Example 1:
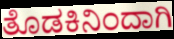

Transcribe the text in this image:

ತೊಡಕಿನಿಂದಾಗಿ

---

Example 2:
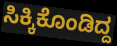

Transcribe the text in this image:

ಸಿಕ್ಕಿಕೊಂಡಿದ್ದ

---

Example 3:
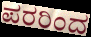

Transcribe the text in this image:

ಪರರಿಂದ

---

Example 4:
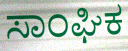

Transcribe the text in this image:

ಸಾಂಘಿಕ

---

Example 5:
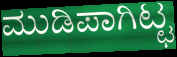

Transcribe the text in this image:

ಮುಡಿಪಾಗಿಟ್ಟ